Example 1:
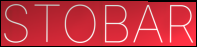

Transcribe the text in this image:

STOBAR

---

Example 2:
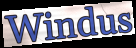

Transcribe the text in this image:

Windus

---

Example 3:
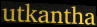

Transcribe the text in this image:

utkantha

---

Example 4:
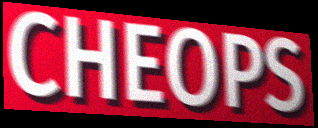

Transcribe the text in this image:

CHEOPS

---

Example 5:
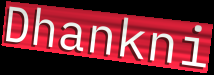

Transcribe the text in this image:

Dhankni